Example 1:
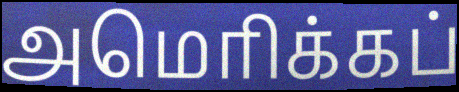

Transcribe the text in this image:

அமெரிக்கப்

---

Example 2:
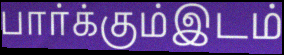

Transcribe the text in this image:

பார்க்கும்இடம்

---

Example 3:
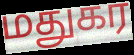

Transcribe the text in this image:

மதுகர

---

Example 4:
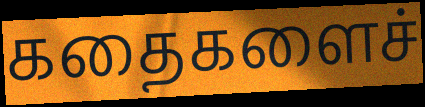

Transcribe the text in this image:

கதைகளைச்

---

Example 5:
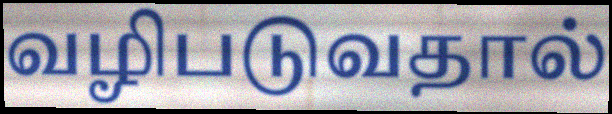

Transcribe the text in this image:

வழிபடுவதால்